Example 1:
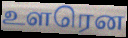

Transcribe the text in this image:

உளரென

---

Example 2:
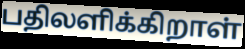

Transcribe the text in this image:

பதிலளிக்கிறாள்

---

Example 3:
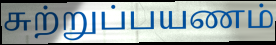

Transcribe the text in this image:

சுற்றுப்பயணம்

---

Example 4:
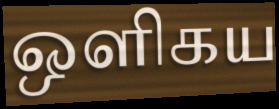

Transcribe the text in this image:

ஒளிகய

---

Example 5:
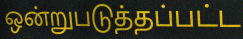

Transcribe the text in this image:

ஒன்றுபடுத்தப்பட்ட